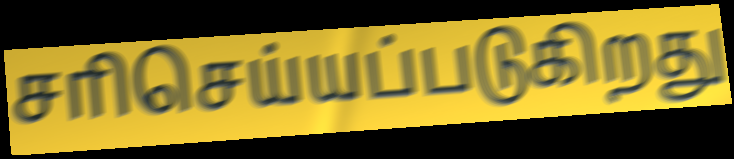
சரிசெய்யப்படுகிறது